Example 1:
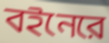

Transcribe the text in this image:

বইনেরে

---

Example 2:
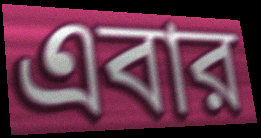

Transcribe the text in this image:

এবার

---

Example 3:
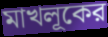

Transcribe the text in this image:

মাখলূকের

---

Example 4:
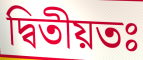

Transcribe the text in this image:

দ্বিতীয়তঃ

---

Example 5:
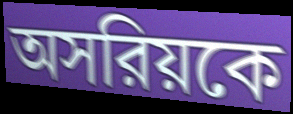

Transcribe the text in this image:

অসরিয়কে